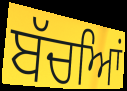
ਬੱਚਆਿਂ